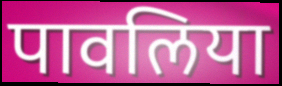
पावलिया